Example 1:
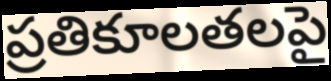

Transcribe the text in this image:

ప్రతికూలతలపై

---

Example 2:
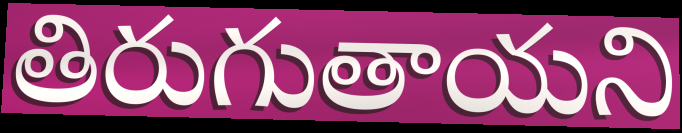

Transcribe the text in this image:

తిరుగుతాయని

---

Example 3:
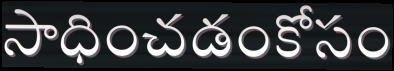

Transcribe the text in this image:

సాధించడంకోసం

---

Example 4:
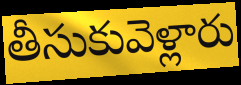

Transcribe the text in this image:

తీసుకువెళ్లారు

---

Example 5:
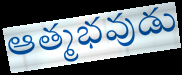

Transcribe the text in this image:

ఆత్మభవుడు